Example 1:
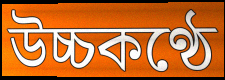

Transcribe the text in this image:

উচ্চকণ্ঠে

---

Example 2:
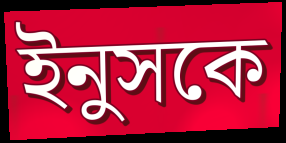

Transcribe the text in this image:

ইনুসকে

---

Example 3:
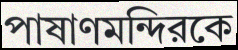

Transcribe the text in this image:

পাষাণমন্দিরকে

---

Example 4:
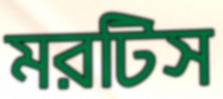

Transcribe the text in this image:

মরটিস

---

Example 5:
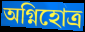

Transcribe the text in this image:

অগ্নিহোত্র